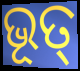
ଭୂତ୍